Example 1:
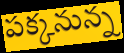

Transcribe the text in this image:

పక్కనున్న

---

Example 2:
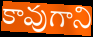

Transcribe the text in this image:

కావుగాని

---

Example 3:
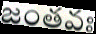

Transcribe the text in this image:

జంతవః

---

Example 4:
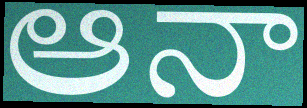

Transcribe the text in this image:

ఆనా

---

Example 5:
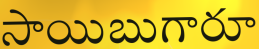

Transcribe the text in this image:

సాయిబుగారూ